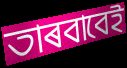
তাৰবাবেই